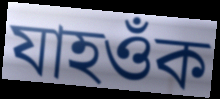
যাহওঁক